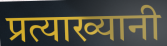
प्रत्याख्यानी